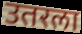
उतरला